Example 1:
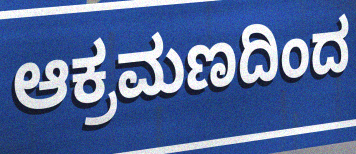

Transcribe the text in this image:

ಆಕ್ರಮಣದಿಂದ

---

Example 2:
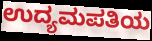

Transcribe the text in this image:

ಉದ್ಯಮಪತಿಯ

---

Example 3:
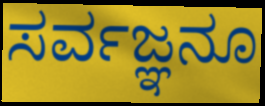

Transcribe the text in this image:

ಸರ್ವಜ್ಞನೂ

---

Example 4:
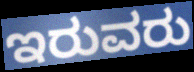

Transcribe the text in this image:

ಇರುವರು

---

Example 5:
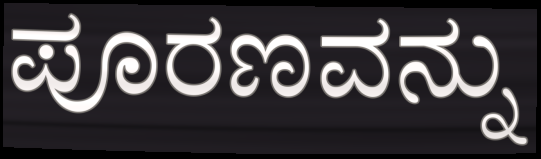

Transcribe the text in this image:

ಪೂರಣವನ್ನು